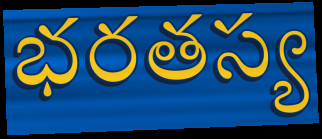
భరతస్య